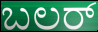
ಬಲರ್